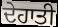
ਦੇਹਾਤੀ